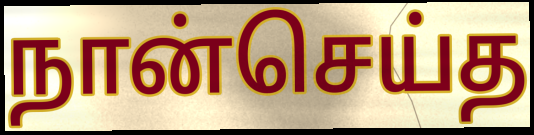
நான்செய்த